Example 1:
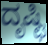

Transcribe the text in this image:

ದೃಷ್ಟಿ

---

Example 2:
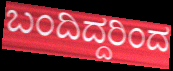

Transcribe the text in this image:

ಬಂದಿದ್ದರಿಂದ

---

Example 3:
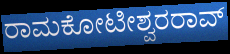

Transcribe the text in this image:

ರಾಮಕೋಟೀಶ್ವರರಾವ್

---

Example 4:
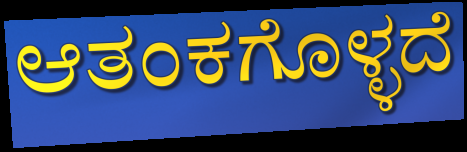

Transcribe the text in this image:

ಆತಂಕಗೊಳ್ಳದೆ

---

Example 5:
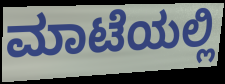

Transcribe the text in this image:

ಮಾಟೆಯಲ್ಲಿ